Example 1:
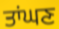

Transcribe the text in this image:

ਤਾਂਘਣ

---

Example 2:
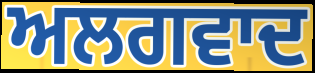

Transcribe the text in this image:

ਅਲਗਵਾਦ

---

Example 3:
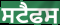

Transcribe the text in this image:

ਸਟੈਫਸ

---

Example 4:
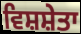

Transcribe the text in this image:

ਵਿਸ਼ਸ਼ੇਤਾ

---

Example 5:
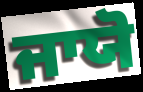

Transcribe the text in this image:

ਜਾਯੋ